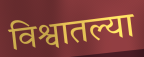
विश्वातल्या